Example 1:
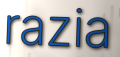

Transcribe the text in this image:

razia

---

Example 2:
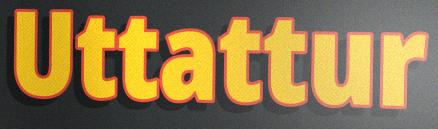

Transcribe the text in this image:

Uttattur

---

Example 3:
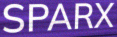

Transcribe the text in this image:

SPARX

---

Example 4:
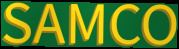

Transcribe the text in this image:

SAMCO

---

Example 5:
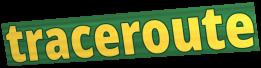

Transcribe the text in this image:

traceroute